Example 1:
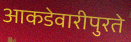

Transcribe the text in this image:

आकडेवारीपुरते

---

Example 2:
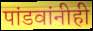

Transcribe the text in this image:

पांडवांनीही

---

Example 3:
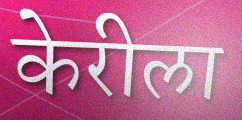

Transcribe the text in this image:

केरीला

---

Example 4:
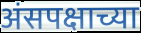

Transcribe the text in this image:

अंसपक्षाच्या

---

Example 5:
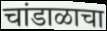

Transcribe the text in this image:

चांडाळाचा